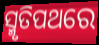
ସ୍ମୃତିପଥରେ